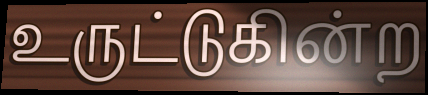
உருட்டுகின்ற